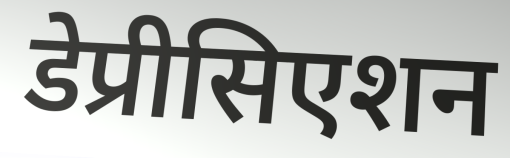
डेप्रीसिएशन